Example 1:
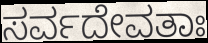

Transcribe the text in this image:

ಸರ್ವದೇವತಾಃ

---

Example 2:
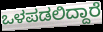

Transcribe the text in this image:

ಒಳಪಡಲಿದ್ದಾರೆ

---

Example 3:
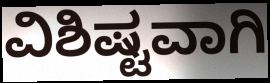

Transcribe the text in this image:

ವಿಶಿಷ್ಟವಾಗಿ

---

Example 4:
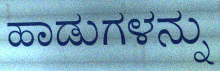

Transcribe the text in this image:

ಹಾಡುಗಳನ್ನು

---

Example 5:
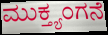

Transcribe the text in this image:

ಮುಕ್ತ್ಯಂಗನೆ